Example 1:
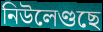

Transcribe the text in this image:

নিউলেণ্ডছে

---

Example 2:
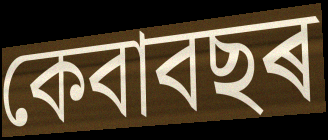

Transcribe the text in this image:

কেবাবছৰ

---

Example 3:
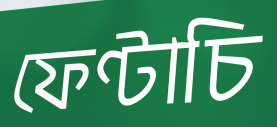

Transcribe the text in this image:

ফেণ্টাচি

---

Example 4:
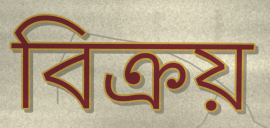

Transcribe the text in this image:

বিক্ৰয়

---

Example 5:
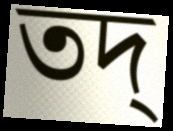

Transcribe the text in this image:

তদ্